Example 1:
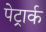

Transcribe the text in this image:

पेट्रार्क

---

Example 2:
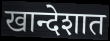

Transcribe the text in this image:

खान्देशात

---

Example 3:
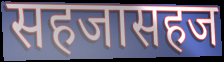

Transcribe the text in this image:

सहजासहज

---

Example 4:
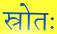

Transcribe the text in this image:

स्रोतः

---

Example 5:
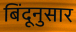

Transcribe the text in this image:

बिंदूनुसार